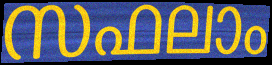
സഫലാം